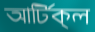
আর্টিক্‌ল